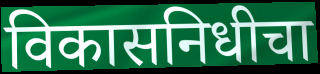
विकासनिधीचा